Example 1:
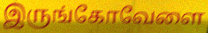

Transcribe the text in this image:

இருங்கோவேளை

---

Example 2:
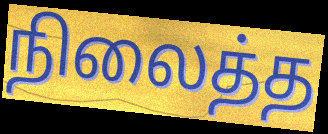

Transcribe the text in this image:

நிலைத்த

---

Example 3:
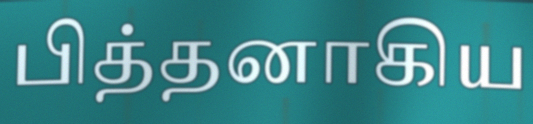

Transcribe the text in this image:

பித்தனாகிய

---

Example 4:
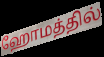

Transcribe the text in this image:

ஹோமத்தில்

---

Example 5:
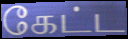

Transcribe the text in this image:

கேட்ட